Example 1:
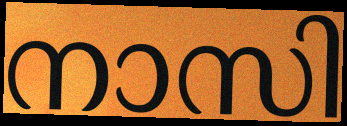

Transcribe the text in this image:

നാസി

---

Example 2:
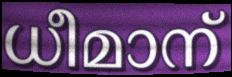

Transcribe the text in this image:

ധീമാന്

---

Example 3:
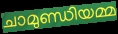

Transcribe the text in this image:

ചാമുണ്ഡിയമ്മ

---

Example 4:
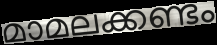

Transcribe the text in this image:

മാമലക്കണ്ടം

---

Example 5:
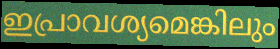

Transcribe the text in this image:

ഇപ്രാവശ്യമെങ്കിലും